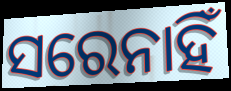
ସରେନାହିଁ